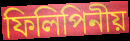
ফিলিপিনীয়